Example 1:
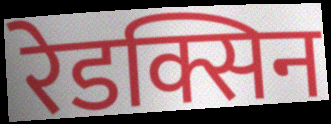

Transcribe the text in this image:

रेडक्सिन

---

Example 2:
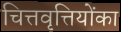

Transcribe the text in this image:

चित्तवृत्तियोंका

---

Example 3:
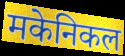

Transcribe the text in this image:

मकेनिकल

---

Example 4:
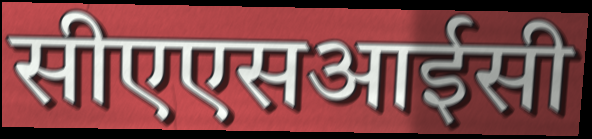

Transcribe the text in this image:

सीएएसआईसी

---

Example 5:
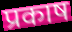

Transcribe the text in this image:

प्रकाष